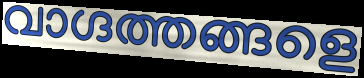
വാഗ്ദത്തങ്ങളെ